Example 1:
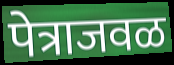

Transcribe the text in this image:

पेत्राजवळ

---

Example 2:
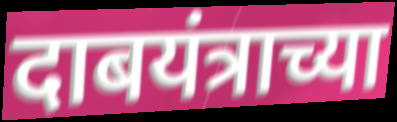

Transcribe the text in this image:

दाबयंत्राच्या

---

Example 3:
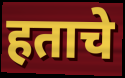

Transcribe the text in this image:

हताचे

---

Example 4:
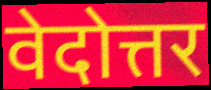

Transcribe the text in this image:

वेदोत्तर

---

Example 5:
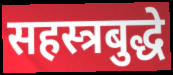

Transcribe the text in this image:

सहस्त्रबुद्धे